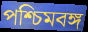
পশ্চিমবঙ্গ